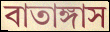
বাতাঙ্গাস